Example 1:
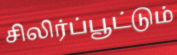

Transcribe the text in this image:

சிலிர்ப்பூட்டும்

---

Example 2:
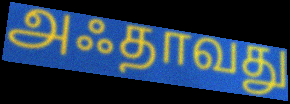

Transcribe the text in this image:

அஃதாவது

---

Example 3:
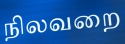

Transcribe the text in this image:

நிலவறை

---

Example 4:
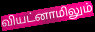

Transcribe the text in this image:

வியட்னாமிலும்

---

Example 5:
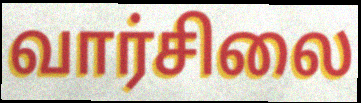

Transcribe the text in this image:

வார்சிலை